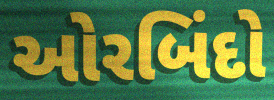
ઓરબિંદો